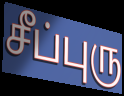
சீப்புரு